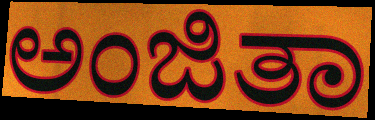
ಅಂಜಿತಾ